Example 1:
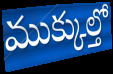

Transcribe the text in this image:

ముక్కుల్తో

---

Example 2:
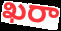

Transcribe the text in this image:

ఖరా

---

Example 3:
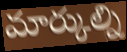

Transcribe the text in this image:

మార్కుల్ని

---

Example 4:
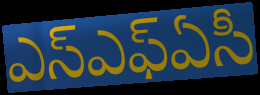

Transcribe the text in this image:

ఎస్ఎఫ్ఏసీ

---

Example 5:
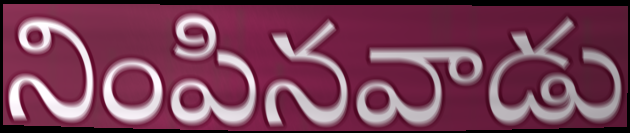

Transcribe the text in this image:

నింపినవాడు